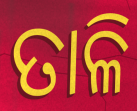
ତାଳି